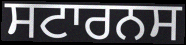
ਸਟਾਰਨਸ